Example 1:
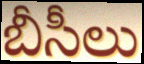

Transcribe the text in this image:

బీసీలు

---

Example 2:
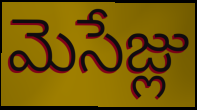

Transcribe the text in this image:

మెసేజ్లు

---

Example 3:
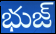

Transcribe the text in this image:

భుజ్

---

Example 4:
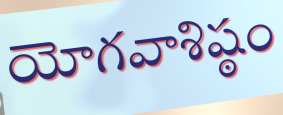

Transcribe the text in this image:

యోగవాశిష్ఠం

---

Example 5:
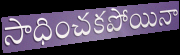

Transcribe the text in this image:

సాధించకపోయినా